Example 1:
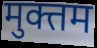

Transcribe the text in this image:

मुक्तम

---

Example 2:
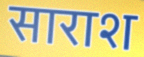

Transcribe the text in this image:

साराश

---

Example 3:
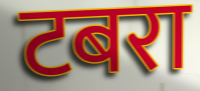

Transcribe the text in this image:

टबरा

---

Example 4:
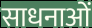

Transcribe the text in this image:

साधनाओं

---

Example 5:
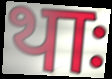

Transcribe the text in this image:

थाः